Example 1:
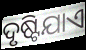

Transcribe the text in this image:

ଦୃଷ୍ଟିଯାଏ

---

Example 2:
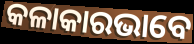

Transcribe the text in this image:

କଳାକାରଭାବେ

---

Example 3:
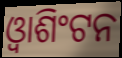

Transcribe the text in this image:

ଓ୍ୱାଶିଂଟନ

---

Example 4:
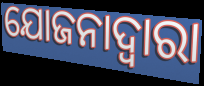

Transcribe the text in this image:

ଯୋଜନାଦ୍ୱାରା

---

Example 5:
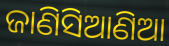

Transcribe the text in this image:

ଜାଣିସିଆଣିଆ